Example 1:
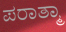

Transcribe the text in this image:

ಪರಾತ್ಮಾ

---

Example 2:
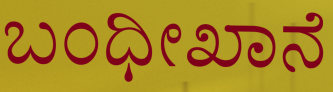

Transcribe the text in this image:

ಬಂಧೀಖಾನೆ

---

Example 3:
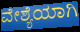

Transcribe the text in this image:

ವೇಶ್ಯೆಯಾಗಿ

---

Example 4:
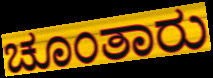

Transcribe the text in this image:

ಚೂಂತಾರು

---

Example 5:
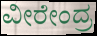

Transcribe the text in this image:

ವೀರೇಂದ್ರ